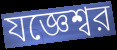
যজ্ঞেশ্বর